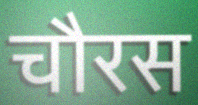
चौरस